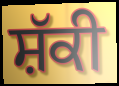
ਸ਼ੱਕੀ